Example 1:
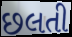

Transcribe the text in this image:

છલતી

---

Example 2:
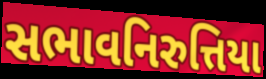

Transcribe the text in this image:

સભાવનિરુત્તિયા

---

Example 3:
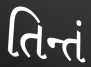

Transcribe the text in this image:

તિન્તં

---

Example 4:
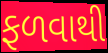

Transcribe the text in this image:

ફળવાથી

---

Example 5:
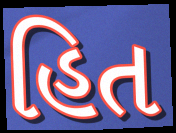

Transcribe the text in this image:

હિત